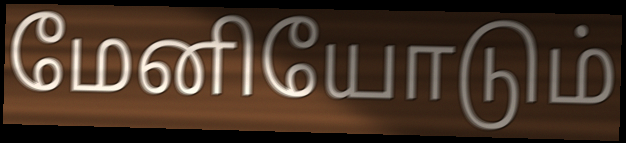
மேனியோடும்